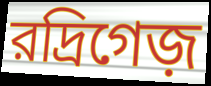
রদ্রিগেজ়